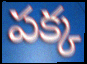
పక్క